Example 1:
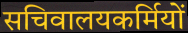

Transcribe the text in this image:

सचिवालयकर्मियों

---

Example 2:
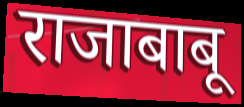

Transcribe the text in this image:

राजाबाबू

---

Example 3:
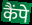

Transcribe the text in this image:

कैंपे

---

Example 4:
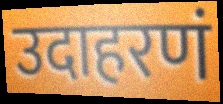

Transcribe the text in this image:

उदाहरणं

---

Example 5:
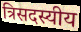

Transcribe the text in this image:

त्रिसदस्यीय